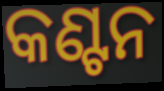
କଣ୍ଟନ